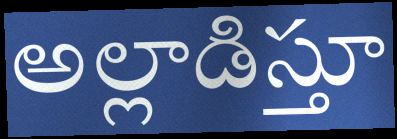
అల్లాడిస్తూ